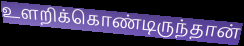
உளறிக்கொண்டிருந்தான்